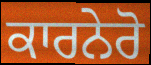
ਕਾਰਨੇਰੋ